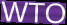
WTO